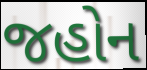
જહોન